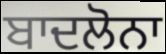
ਬਾਦਲੋਨਾ